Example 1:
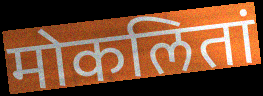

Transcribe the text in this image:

मोकलितां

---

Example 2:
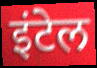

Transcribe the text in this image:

इंटेल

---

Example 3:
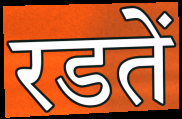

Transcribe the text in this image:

रडतें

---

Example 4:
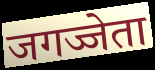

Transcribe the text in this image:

जगज्जेता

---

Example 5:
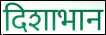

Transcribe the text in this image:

दिशाभान